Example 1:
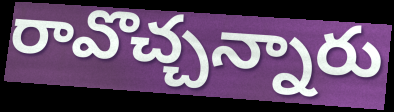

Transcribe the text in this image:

రావొచ్చన్నారు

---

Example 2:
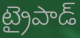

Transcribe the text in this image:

ట్రైపాడ్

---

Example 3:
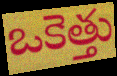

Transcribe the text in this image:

ఒకెత్తు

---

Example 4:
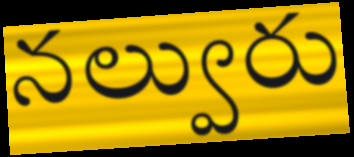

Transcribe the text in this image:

నల్వురు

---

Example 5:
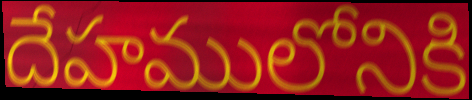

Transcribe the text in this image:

దేహములోనికి